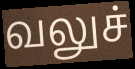
வலுச்